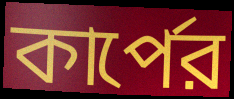
কার্পের